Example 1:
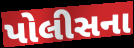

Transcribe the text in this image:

પોલીસના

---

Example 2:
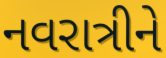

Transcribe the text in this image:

નવરાત્રીને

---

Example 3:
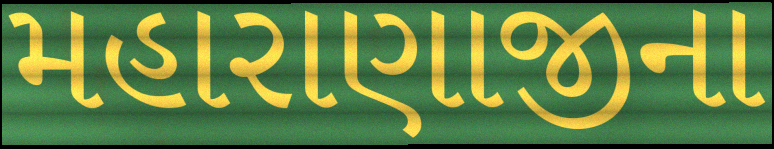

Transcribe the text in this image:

મહારાણાજીના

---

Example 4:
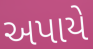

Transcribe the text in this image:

અપાયે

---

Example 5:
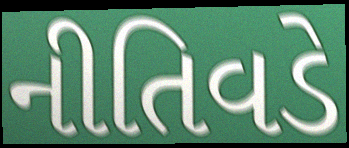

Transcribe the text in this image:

નીતિવડે